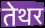
तेथर